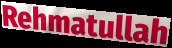
Rehmatullah